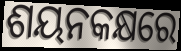
ଶୟନକକ୍ଷରେ